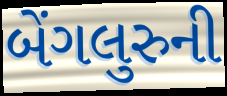
બેંગલુરુની